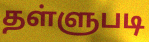
தள்ளுபடி